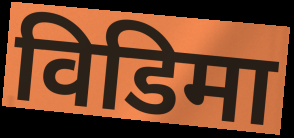
विडिमा